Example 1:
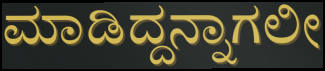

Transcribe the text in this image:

ಮಾಡಿದ್ದನ್ನಾಗಲೀ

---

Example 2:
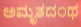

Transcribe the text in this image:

ಅಮೃತದಂಥ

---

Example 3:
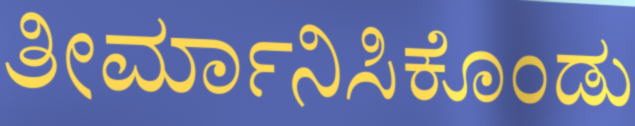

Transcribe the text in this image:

ತೀರ್ಮಾನಿಸಿಕೊಂಡು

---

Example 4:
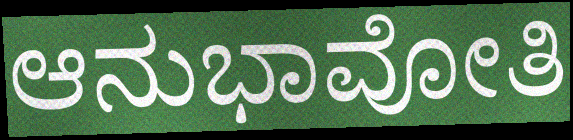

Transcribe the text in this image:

ಆನುಭಾವೋತಿ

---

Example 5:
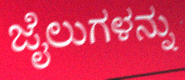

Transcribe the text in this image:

ಜೈಲುಗಳನ್ನು